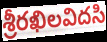
శ్రీరఖిలవిదసి